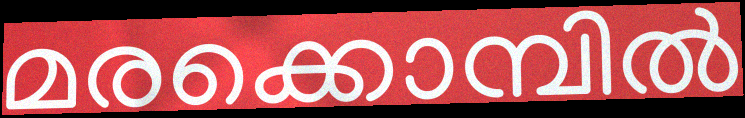
മരക്കൊമ്പിൽ